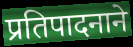
प्रतिपादनाने